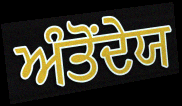
ਅੰਤੋਂਦੇਯ